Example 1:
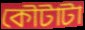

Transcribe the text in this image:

কৌটাটা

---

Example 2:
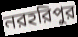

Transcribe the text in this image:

নরহরিপুর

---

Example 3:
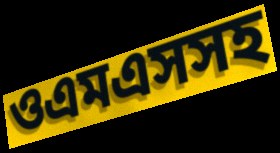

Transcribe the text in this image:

ওএমএসসহ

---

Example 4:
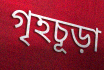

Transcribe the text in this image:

গৃহচূড়া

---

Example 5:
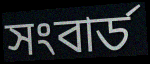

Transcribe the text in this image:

সংবার্ড